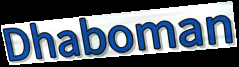
Dhaboman